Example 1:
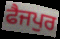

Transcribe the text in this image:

ਫੈਜਪੁਰ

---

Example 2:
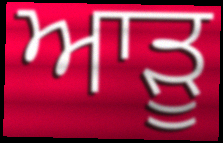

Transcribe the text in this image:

ਆੜੂ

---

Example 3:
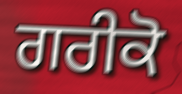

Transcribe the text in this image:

ਗਰੀਕੋ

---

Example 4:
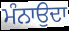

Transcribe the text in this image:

ਮੰਨਾਉਦਾ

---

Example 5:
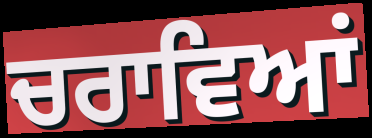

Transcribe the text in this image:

ਚਰਾਵਿਆਂ